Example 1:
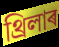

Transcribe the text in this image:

থ্ৰিলাৰ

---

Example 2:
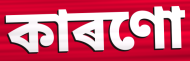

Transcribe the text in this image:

কাৰণো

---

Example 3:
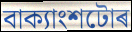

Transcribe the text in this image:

বাক্যাংশটোৰ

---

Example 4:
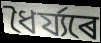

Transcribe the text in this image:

ধৈৰ্য্যৰে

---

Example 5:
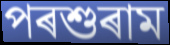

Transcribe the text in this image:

পৰশুৰাম